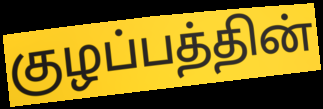
குழப்பத்தின்